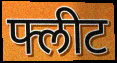
फ्लीट